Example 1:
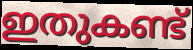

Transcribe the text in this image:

ഇതുകണ്ട്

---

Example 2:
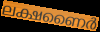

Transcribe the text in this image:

ലക്ഷണൈർ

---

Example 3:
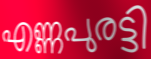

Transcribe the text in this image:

എണ്ണപുരട്ടി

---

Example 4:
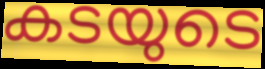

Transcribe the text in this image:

കടയുടെ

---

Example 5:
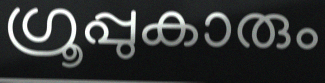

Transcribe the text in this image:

ഗ്രൂപ്പുകാരും